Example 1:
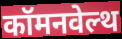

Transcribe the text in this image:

कॉमनवेल्थ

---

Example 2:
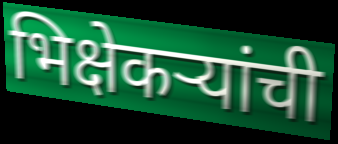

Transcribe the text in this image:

भिक्षेकऱ्यांची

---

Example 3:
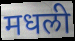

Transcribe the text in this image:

मधली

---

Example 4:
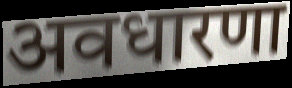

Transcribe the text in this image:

अवधारणा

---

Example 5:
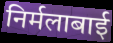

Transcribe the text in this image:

निर्मलाबाई